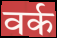
वर्क